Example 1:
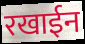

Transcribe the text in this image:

रखाईन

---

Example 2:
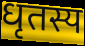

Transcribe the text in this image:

धृतस्य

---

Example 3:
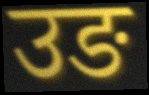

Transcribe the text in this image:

उङ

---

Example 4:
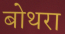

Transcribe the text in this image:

बोथरा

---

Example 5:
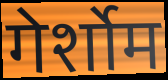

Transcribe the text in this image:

गेर्शोम